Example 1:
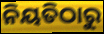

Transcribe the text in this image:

ନିୟତିଠାରୁ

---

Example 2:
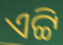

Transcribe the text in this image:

ଏଟ୍ଟି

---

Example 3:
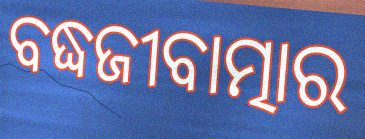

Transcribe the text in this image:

ବଦ୍ଧଜୀବାତ୍ମାର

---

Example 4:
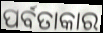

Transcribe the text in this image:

ପର୍ବତାକାର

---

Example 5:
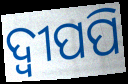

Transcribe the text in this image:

ଦ୍ବୀପପି